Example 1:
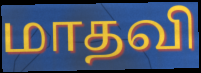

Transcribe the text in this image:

மாதவி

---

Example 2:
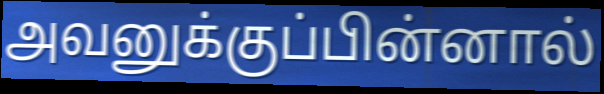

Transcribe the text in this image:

அவனுக்குப்பின்னால்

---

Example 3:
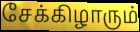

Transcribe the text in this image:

சேக்கிழாரும்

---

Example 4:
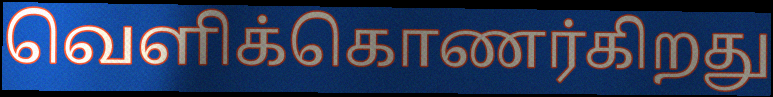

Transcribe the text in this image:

வெளிக்கொணர்கிறது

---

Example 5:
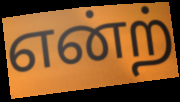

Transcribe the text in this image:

என்ற்